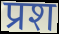
प्रश